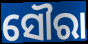
ସୌରା